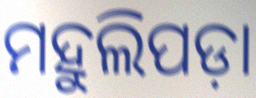
ମହୁଲିପଡ଼ା